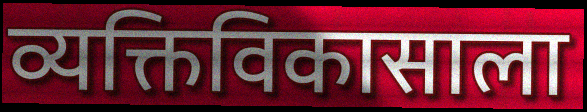
व्यक्तिविकासाला